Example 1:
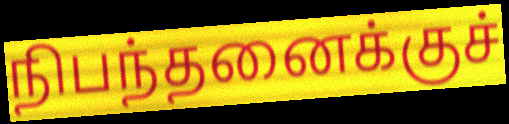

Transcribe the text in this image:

நிபந்தனைக்குச்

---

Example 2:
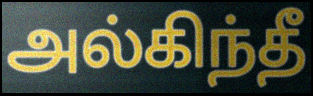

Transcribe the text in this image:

அல்கிந்தீ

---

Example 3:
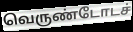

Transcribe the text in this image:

வெருண்டோடச்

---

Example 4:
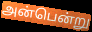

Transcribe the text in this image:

அன்பென்று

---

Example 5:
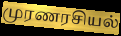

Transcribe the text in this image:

முரணரசியல்